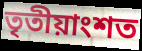
তৃতীয়াংশত